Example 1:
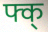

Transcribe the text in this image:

फ्क्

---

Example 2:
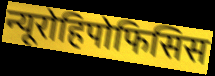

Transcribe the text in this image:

न्यूरोहिपोफिसिस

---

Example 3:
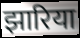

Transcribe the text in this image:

झारिया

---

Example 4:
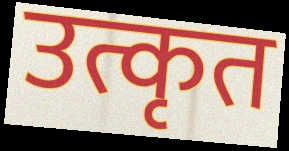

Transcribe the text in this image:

उत्कृत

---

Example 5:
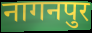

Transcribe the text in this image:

नागनपुर